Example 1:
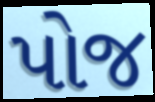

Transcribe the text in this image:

પોજ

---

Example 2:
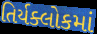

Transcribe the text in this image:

તિર્યક્લોકમાં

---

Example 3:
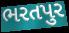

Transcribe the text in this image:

ભરતપુર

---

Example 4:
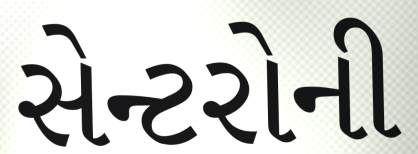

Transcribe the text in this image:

સેન્ટરોની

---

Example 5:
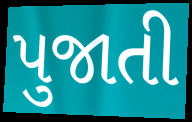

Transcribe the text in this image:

પુજાતી